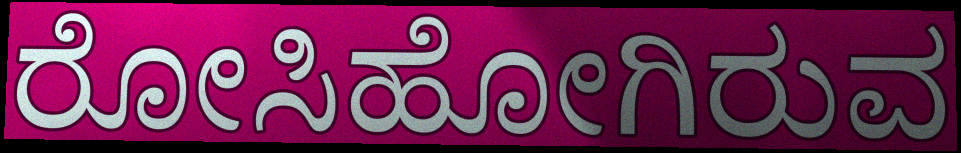
ರೋಸಿಹೋಗಿರುವ